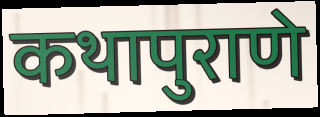
कथापुराणे